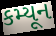
કમ્યૂન